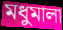
মধুমালা